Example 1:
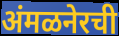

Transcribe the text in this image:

अंमळनेरची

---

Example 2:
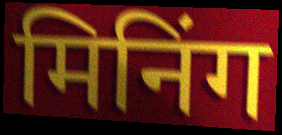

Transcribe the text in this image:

मिनिंग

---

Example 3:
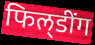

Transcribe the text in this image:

फिल्डींग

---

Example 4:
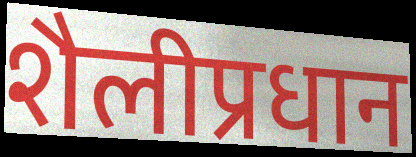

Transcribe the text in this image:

शैलीप्रधान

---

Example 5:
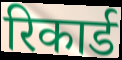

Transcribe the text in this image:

रिकार्ड